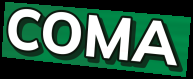
COMA